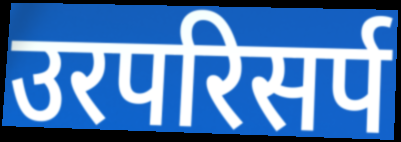
उरपरिसर्प